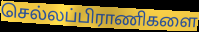
செல்லப்பிராணிகளை